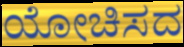
ಯೋಚಿಸದ